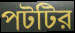
পটটির